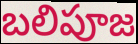
బలిపూజ